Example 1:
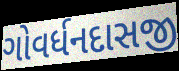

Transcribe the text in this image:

ગોવર્ધનદાસજી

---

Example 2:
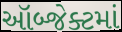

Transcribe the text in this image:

ઑબ્જેક્ટમાં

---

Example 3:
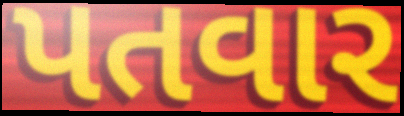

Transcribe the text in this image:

પતવાર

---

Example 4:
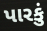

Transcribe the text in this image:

પારકું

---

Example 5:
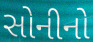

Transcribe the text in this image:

સોનીનો